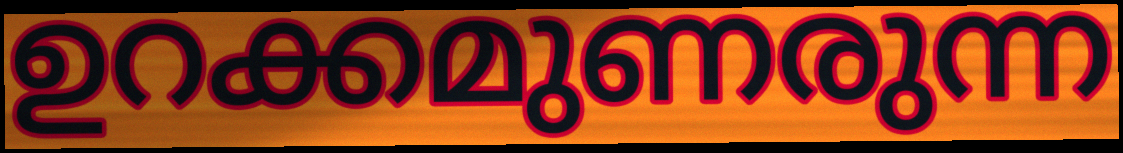
ഉറക്കമുണരുന്ന